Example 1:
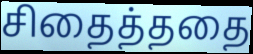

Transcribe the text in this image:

சிதைத்ததை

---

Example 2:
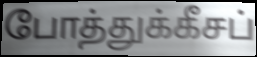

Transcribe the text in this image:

போத்துக்கீசப்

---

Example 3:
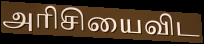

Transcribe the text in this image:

அரிசியைவிட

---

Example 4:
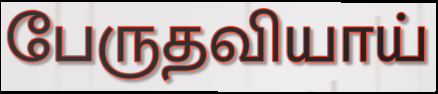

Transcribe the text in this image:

பேருதவியாய்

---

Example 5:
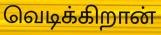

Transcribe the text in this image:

வெடிக்கிறான்